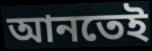
আনতেই